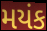
મયંક